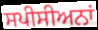
ਸਪੀਸੀਅਨਾਂ